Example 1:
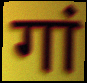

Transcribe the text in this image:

गां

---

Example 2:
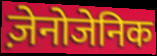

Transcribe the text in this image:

ज़ेनोजेनिक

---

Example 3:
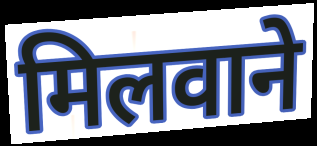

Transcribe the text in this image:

मिलवाने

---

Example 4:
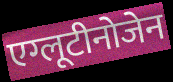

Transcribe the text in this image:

एग्लूटीनोजेन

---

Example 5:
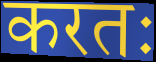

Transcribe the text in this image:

करतः